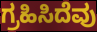
ಗ್ರಹಿಸಿದೆವು